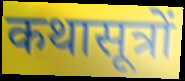
कथासूत्रों